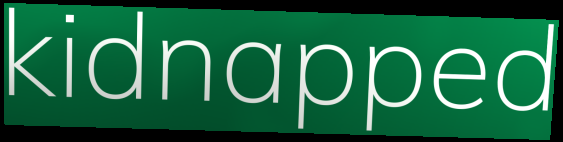
kidnapped